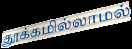
தூக்கமில்லாமல்